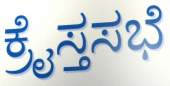
ಕ್ರೈಸ್ತಸಭೆ